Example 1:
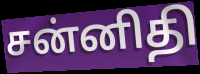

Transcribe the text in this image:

சன்னிதி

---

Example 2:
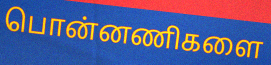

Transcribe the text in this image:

பொன்னணிகளை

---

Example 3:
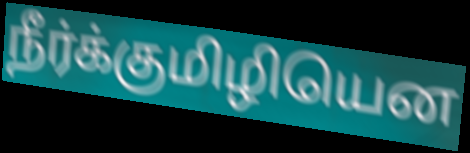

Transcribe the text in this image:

நீர்க்குமிழியென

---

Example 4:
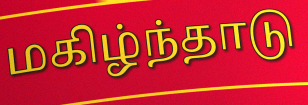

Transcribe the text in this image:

மகிழ்ந்தாடு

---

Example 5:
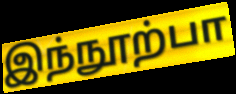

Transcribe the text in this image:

இந்நூற்பா